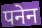
पनेन